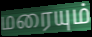
மரையும்